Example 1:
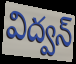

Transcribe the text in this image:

విద్వన్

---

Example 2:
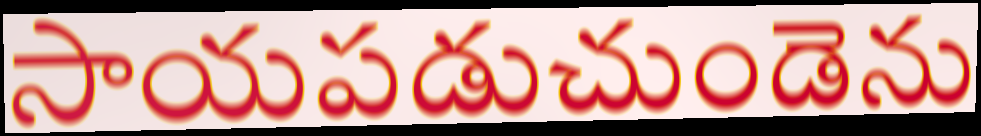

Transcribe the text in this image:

సాయపడుచుండెను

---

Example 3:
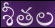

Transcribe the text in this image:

శీతల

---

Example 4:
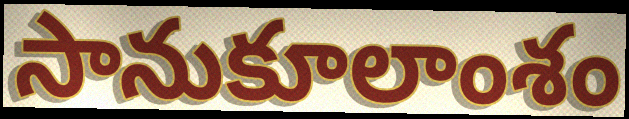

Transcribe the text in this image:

సానుకూలాంశం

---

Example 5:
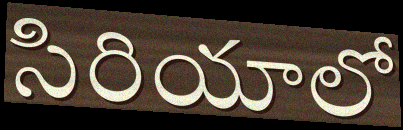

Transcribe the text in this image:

సిరియాలో